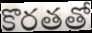
కొరతతో